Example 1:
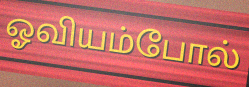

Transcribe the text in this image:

ஓவியம்போல்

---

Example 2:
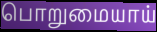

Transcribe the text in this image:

பொறுமையாய்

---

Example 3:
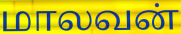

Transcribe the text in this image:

மாலவன்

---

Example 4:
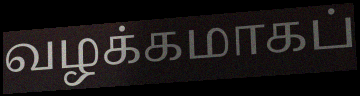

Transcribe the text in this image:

வழக்கமாகப்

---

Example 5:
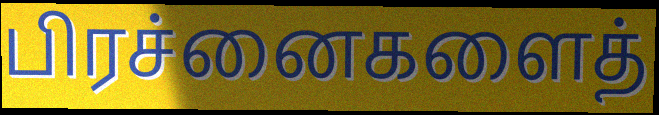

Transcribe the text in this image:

பிரச்னைகளைத்